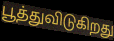
பூத்துவிடுகிறது